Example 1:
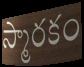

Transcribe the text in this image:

స్మారకం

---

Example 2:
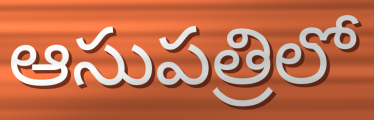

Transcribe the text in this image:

ఆసుపత్రిలో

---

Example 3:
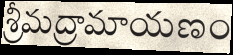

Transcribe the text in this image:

శ్రీమద్రామాయణం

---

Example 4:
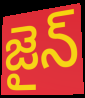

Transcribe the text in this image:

జైన్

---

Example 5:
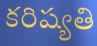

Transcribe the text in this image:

కరిష్యతి